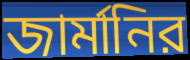
জার্মানির